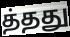
த்தது